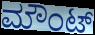
ಮೌಂಟ್